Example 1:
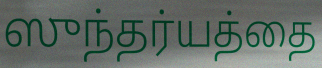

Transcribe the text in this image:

ஸுந்தர்யத்தை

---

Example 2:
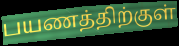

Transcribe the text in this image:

பயணத்திற்குள்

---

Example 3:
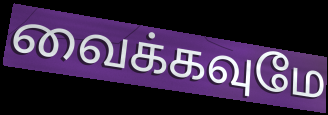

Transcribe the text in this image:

வைக்கவுமே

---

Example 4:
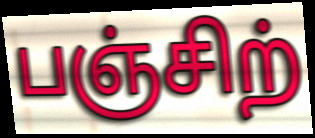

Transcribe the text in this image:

பஞ்சிற்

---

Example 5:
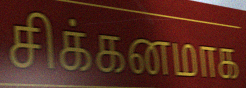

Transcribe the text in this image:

சிக்கனமாக